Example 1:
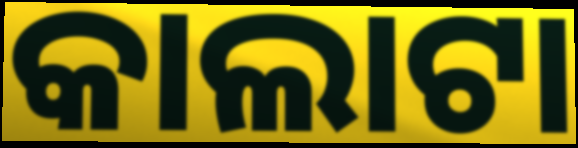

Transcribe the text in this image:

କାଲାଟା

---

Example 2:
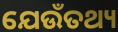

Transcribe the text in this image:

ଯେଉଁତଥ୍ୟ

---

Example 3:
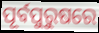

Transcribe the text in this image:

ପୂର୍ବପୁରୁଷରେ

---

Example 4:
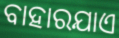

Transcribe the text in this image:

ବାହାରଯାଏ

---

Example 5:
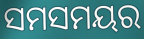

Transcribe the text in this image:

ସମସମୟର